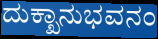
ದುಕ್ಖಾನುಭವನಂ